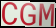
CGM